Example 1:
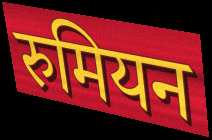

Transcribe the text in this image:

रुमियन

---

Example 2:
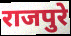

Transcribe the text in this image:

राजपुरे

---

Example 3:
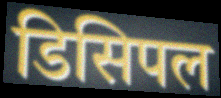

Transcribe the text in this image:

डिसिपल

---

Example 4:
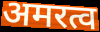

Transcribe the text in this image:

अमरत्व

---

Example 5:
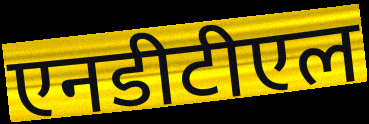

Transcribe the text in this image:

एनडीटीएल